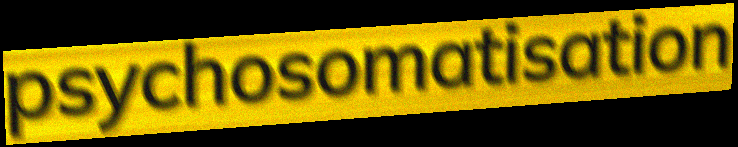
psychosomatisation